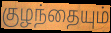
குழந்தையும்